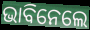
ଭାବିନେଲେ